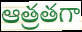
ఆత్రతగా